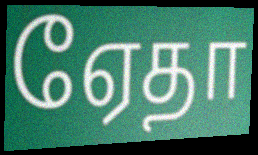
ஏேதா